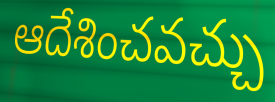
ఆదేశించవచ్చు